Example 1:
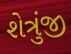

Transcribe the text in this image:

શેત્રુંજી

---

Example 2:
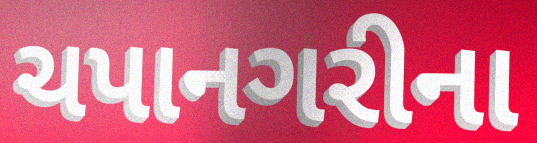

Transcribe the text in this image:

ચપાનગરીના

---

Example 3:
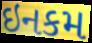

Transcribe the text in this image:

ઇનકમ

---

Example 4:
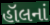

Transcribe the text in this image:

હૉલનાં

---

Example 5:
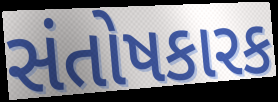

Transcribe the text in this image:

સંતોષકારક